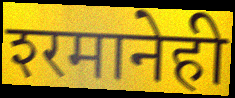
श्रमानेही